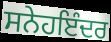
ਸਨੇਹਇੰਦਰ